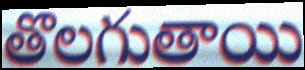
తొలగుతాయి